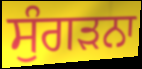
ਸੁੰਗੜਨਾ